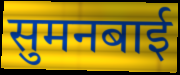
सुमनबाई